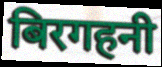
बिरगहनी